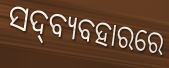
ସଦ୍‍ବ୍ୟବହାରରେ